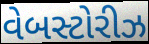
વેબસ્ટોરીઝ